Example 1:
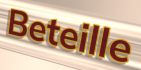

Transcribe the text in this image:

Beteille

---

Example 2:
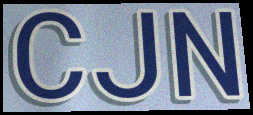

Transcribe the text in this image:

CJN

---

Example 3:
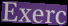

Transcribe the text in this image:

Exerc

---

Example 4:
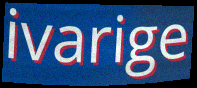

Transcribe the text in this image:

ivarige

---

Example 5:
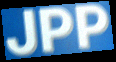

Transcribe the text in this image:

JPP